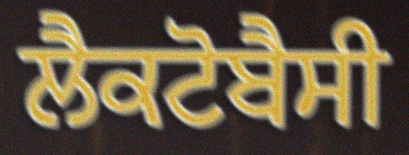
ਲੈਕਟੋਬੈਸੀ